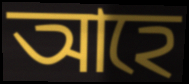
আহে